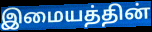
இமையத்தின்